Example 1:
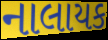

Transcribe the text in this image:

નાલાયક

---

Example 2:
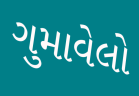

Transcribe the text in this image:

ગુમાવેલો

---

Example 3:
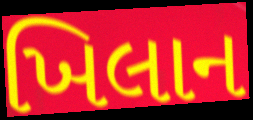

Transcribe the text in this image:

ખિલાન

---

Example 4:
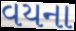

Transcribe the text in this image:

વયના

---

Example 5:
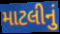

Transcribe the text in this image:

માટલીનું